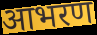
आभरण